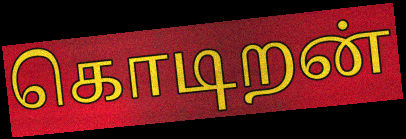
கொடிறன்